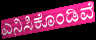
ಎನಿಸಿಕೊಂಡಿವೆ